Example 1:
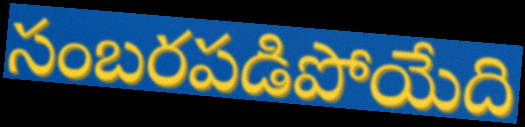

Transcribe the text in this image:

సంబరపడిపోయేది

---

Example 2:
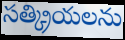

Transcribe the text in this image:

సత్క్రియలను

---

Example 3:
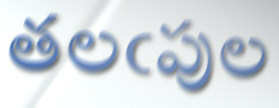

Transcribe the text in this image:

తలఁపుల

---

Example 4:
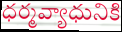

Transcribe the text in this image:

ధర్మవ్యాధునికి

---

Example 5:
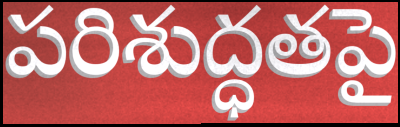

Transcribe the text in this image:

పరిశుద్ధతపై